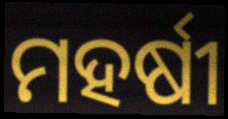
ମହର୍ଷୀ